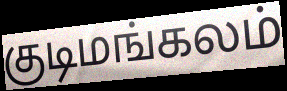
குடிமங்கலம்